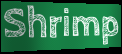
Shrimp